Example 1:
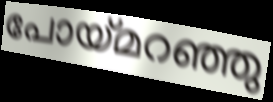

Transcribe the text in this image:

പോയ്മറഞ്ഞു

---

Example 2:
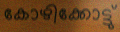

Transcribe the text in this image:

കോഴിക്കോട്ടു്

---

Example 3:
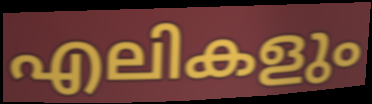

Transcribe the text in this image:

എലികളും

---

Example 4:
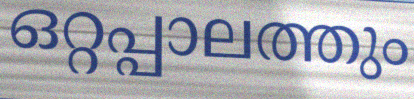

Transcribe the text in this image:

ഒറ്റപ്പാലത്തും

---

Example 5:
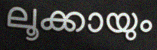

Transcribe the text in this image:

ലൂക്കായും